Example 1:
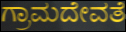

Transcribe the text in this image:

ಗ್ರಾಮದೇವತೆ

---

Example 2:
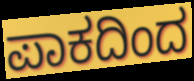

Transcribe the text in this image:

ಪಾಕದಿಂದ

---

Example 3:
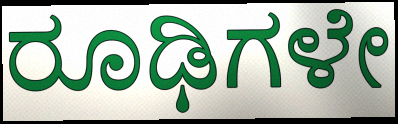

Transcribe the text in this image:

ರೂಢಿಗಳೇ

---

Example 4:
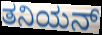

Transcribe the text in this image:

ತನಿಯನ್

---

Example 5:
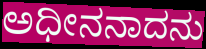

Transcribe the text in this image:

ಅಧೀನನಾದನು